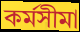
কর্মসীমা